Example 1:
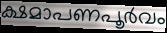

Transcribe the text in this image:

ക്ഷമാപണപൂർവം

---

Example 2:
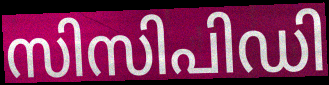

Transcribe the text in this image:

സിസിപിഡി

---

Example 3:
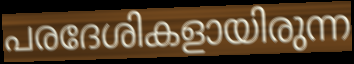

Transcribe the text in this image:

പരദേശികളായിരുന്ന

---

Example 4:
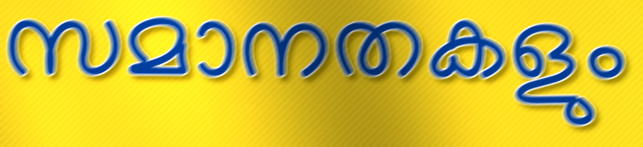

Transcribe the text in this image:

സമാനതകളും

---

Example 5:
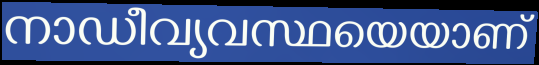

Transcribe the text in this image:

നാഡീവ്യവസ്ഥയെയാണ്